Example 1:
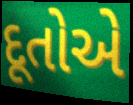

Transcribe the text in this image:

દૂતોએ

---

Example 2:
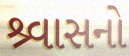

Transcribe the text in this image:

શ્ર્વાસનો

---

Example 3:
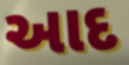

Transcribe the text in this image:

આદ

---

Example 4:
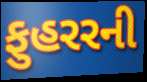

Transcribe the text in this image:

ફુહરરની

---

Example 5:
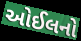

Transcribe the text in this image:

ઓઈલનો